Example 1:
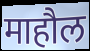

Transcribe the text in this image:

माहौल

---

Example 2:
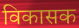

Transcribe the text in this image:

विकासक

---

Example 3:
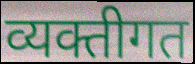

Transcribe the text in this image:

व्यक्तीगत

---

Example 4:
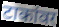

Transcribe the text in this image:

टाकांवर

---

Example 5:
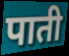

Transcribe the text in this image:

पाती